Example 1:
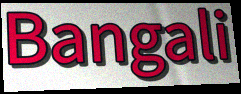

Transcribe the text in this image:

Bangali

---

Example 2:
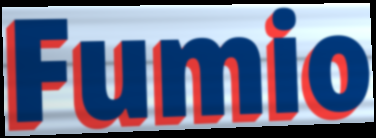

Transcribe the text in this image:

Fumio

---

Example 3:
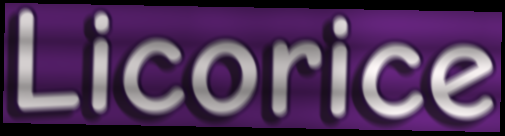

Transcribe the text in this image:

Licorice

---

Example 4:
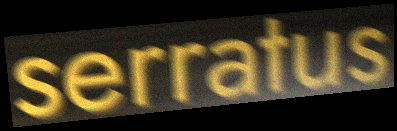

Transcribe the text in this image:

serratus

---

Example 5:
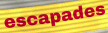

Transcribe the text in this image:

escapades